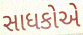
સાધકોએ